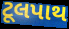
ટૂલપાથ